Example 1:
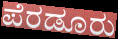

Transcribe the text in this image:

ಪೆರಡೂರು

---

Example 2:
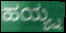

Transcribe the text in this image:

ಹಯ್ಯ್ನ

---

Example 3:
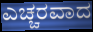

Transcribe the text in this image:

ಎಚ್ಚರವಾದ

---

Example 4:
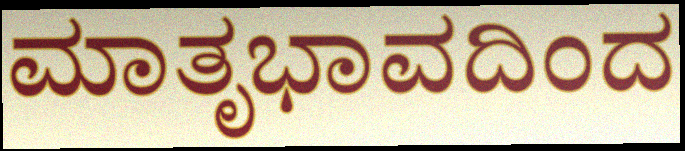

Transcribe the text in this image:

ಮಾತೃಭಾವದಿಂದ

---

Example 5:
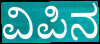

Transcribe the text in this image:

ವಿಪಿನ